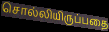
சொல்லியிருப்பதை